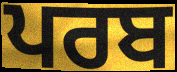
ਪਰਬ